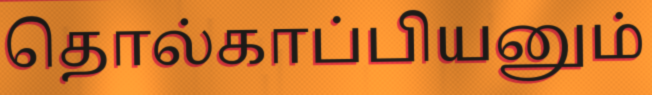
தொல்காப்பியனும்